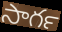
సాగర్‍